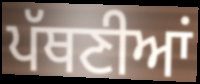
ਪੱਥਣੀਆਂ